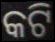
କଟି